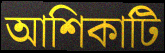
আশিকাটি